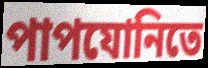
পাপযোনিতে